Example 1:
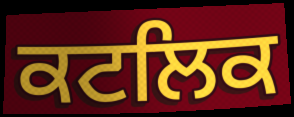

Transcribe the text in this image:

ਕਟਲਿਕ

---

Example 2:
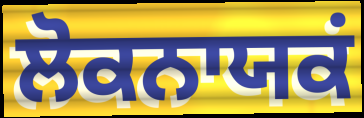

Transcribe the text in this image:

ਲੋਕਨਾਯਕਂ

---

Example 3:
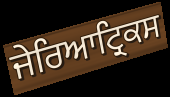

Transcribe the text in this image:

ਜੇਰਿਆਟ੍ਰਿਕਸ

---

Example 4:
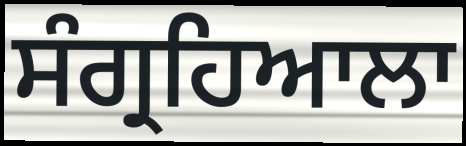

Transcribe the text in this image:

ਸੰਗ੍ਰਹਿਆਲਾ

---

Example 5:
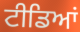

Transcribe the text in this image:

ਟੀਡਿਆਂ